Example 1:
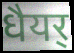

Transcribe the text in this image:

धैयर्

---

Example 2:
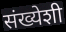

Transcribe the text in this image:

संख्येशी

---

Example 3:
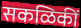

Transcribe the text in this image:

सकळिकीं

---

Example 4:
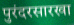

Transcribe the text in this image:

पुरंदरसारखा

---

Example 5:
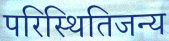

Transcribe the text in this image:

परिस्थितिजन्य